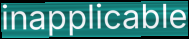
inapplicable